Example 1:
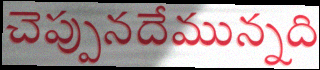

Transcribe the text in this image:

చెప్పునదేమున్నది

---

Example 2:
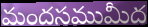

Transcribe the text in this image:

మందసముమీద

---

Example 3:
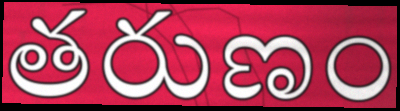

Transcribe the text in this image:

తరుణం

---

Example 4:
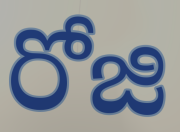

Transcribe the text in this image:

రోజి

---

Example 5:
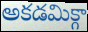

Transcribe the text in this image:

అకడమిక్గా